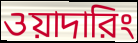
ওয়াদারিং